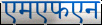
एमएफएन